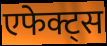
एफेक्ट्स